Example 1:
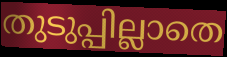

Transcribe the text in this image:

തുടുപ്പില്ലാതെ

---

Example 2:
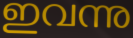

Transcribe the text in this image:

ഇവന്നു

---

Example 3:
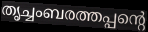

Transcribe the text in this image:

തൃച്ചംബരത്തപ്പന്റെ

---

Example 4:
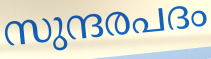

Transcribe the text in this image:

സുന്ദരപദം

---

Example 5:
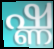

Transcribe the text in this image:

ഷ്ണ